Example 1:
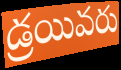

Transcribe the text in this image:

డ్రయివరు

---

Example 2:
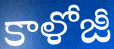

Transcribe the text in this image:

కాళోజీ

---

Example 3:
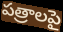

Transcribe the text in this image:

పత్రాలపై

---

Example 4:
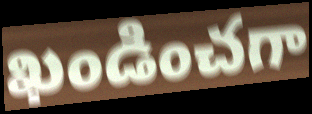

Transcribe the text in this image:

ఖండించగా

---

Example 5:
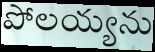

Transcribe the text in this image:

పోలయ్యను